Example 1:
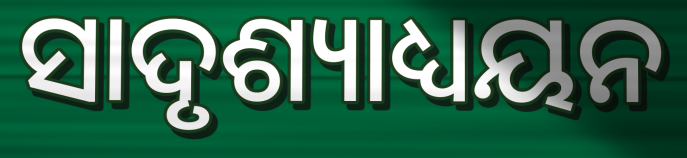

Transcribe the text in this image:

ସାଦୃଶ୍ୟାଧ୍ୟୟନ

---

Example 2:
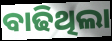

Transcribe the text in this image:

ବାଢିଥିଲା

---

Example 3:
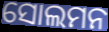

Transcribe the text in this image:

ସୋଲମନ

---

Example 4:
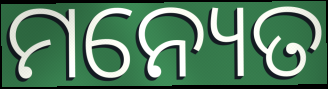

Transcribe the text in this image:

ମନ୍ୟେତ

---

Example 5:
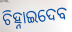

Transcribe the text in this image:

ଚିହ୍ନାଇଦେବ